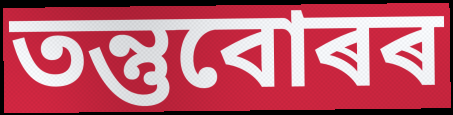
তন্তুবোৰৰ